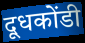
दूधकोंडी